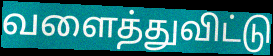
வளைத்துவிட்டு